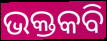
ଭକ୍ତକବି